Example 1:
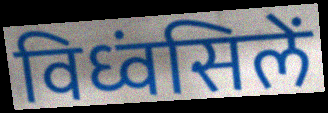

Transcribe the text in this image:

विध्वंसिलें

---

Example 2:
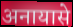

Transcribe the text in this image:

अनायासे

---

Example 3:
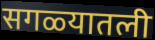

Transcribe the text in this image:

सगळ्यातली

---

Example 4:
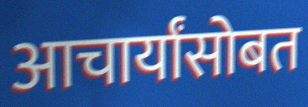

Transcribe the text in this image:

आचार्यांसोबत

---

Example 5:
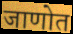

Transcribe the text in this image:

जाणोत